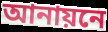
আনায়নে